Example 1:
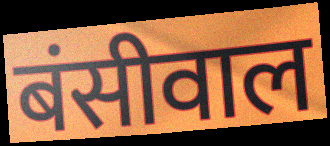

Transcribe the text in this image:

बंसीवाल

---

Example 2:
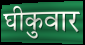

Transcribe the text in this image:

घीकुवार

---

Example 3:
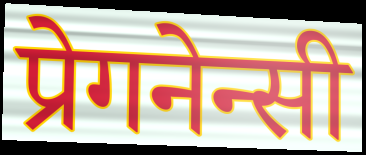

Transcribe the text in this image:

प्रेगनेन्सी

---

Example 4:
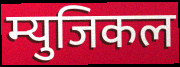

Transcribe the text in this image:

म्युजिकल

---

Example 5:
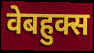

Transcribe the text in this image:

वेबहुक्स